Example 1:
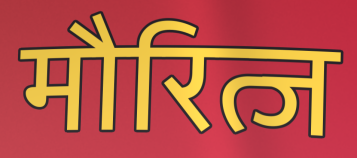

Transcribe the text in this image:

मौरित्ज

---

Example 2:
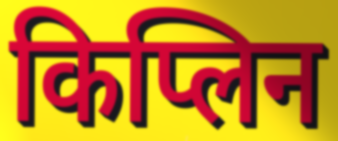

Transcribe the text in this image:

किप्लिन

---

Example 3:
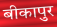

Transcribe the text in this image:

बीकापुर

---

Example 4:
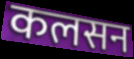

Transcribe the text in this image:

कलसन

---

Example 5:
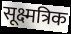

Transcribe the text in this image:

सूक्ष्मत्रिक